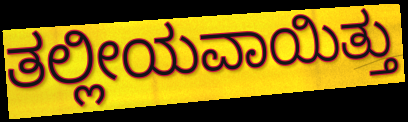
ತಲ್ಲೀಯವಾಯಿತ್ತು